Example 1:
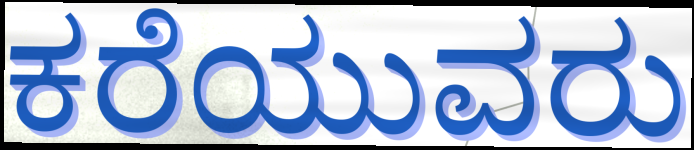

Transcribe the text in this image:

ಕರೆಯುವರು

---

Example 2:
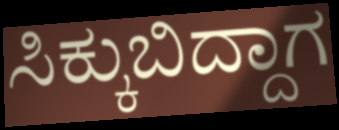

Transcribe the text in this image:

ಸಿಕ್ಕುಬಿದ್ದಾಗ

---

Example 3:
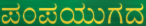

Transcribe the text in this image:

ಪಂಪಯುಗದ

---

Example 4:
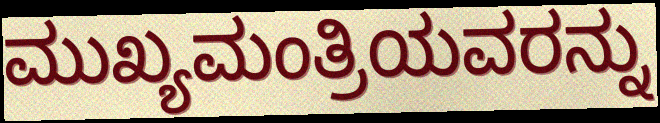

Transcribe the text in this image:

ಮುಖ್ಯಮಂತ್ರಿಯವರನ್ನು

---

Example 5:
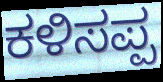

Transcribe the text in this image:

ಕಳಿಸಪ್ಪ